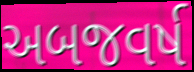
અબજવર્ષ